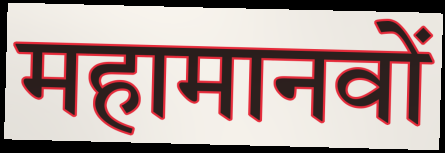
महामानवों